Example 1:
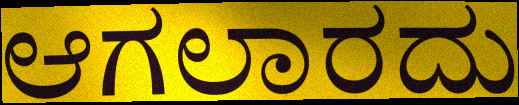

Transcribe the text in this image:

ಆಗಲಾರದು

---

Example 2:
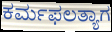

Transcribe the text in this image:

ಕರ್ಮಫಲತ್ಯಾಗ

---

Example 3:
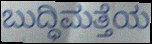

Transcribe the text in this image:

ಬುದ್ಧಿಮತ್ತೆಯ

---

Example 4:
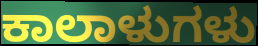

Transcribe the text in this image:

ಕಾಲಾಳುಗಳು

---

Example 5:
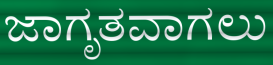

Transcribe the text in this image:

ಜಾಗೃತವಾಗಲು